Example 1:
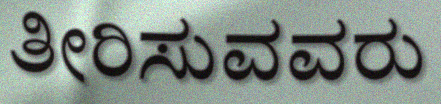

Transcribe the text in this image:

ತೀರಿಸುವವರು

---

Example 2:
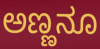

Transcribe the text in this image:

ಅಣ್ಣನೂ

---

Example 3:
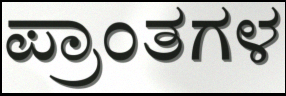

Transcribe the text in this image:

ಪ್ರಾಂತಗಳ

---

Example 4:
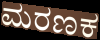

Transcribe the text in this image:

ಮರಣಕ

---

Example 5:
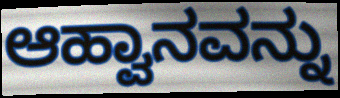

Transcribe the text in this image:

ಆಹ್ವಾನವನ್ನು